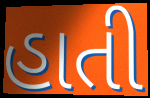
હાતી